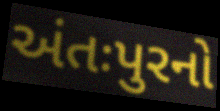
અંતઃપુરનો